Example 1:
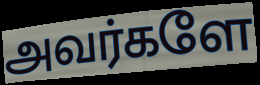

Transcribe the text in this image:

அவர்களே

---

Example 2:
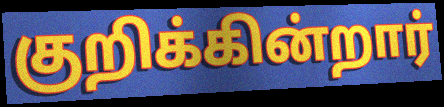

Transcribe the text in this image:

குறிக்கின்றார்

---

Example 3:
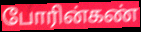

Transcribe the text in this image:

போரின்கண்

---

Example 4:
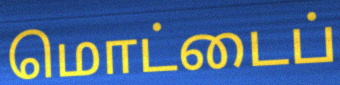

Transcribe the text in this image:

மொட்டைப்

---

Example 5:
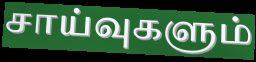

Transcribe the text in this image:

சாய்வுகளும்